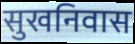
सुखनिवास